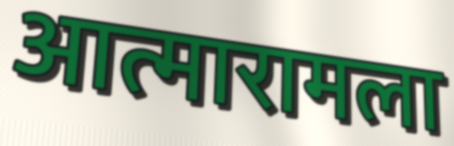
आत्मारामला